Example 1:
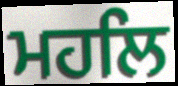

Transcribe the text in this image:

ਮਹਲਿ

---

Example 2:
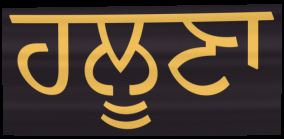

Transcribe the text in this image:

ਹਲੂਣਾ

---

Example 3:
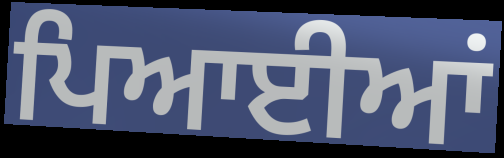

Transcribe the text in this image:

ਪਿਆਈਆਂ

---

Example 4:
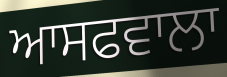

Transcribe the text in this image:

ਆਸਫਵਾਲਾ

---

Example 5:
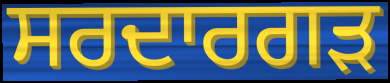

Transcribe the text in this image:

ਸਰਦਾਰਗੜ